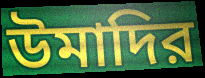
উমাদির